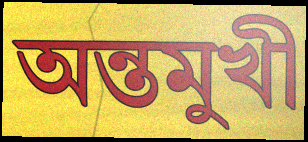
অন্তমুখী